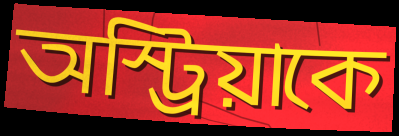
অস্ট্রিয়াকে